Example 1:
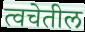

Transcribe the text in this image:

त्वचेतील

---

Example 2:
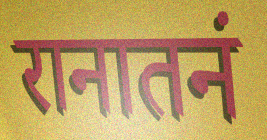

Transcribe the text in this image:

रानातनं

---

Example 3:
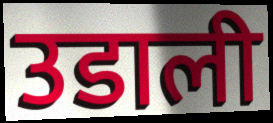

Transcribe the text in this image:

उडाली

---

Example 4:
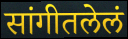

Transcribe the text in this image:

सांगीतलेलं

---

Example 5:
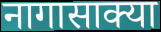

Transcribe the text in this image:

नागासाक्या